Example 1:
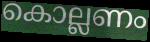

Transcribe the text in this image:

കൊല്ലണം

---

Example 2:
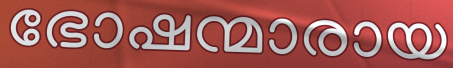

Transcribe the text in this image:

ഭോഷന്മാരായ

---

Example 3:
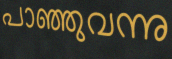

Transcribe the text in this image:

പാഞ്ഞുവന്നു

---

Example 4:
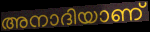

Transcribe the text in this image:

അനാദിയാണ്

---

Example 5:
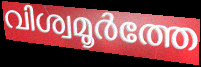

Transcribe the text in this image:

വിശ്വമൂർത്തേ